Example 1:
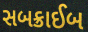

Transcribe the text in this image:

સબક્રાઈબ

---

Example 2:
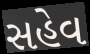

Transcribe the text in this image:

સહેવ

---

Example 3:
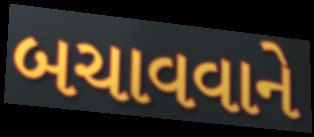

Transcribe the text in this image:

બચાવવાને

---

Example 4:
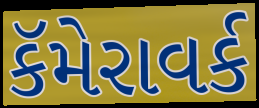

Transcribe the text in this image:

કૅમેરાવર્ક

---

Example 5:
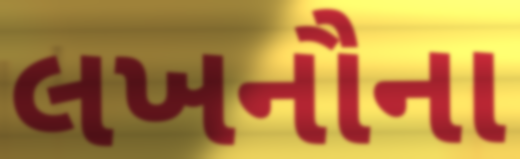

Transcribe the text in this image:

લખનૌના